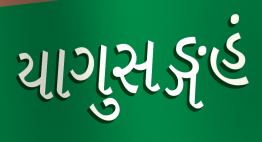
યાગુસઙ્ગહં